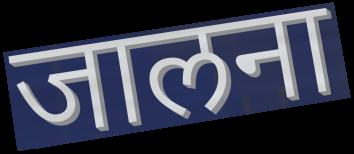
जालना